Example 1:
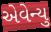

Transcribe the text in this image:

એવેન્યુ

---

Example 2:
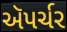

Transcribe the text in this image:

ઍપર્ચર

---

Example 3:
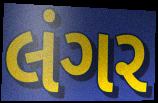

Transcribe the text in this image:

લંગર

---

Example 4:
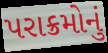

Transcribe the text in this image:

પરાક્રમોનું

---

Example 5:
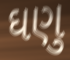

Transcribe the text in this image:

ઘણુ